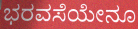
ಭರವಸೆಯೇನೂ